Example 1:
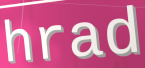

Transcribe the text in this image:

hrad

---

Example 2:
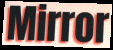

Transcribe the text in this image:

Mirror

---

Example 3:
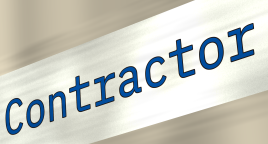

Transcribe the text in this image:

Contractor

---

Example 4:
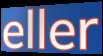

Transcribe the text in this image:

eller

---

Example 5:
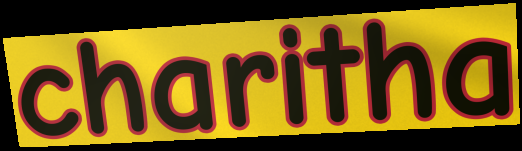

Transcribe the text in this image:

charitha